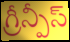
గ్రీన్పీస్